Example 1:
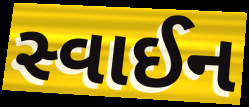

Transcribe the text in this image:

સ્વાઈન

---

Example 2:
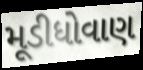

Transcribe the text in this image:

મૂડીધોવાણ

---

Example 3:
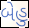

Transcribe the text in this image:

બેહુ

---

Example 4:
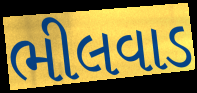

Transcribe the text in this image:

ભીલવાડ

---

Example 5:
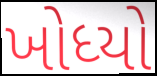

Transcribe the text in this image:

ખોધ્યો